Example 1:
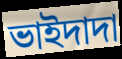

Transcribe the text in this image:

ভাইদাদা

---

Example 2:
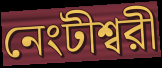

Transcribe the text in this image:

নেংটীশ্বরী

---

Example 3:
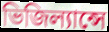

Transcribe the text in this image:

ভিজিল্যান্সে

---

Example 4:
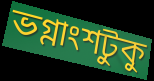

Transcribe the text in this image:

ভগ্নাংশটুকু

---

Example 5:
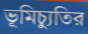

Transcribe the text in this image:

ভূমিচ্যুতির